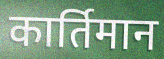
कार्तिमान